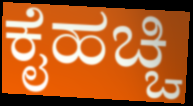
ಕೈಹಚ್ಚಿ